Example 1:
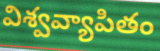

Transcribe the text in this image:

విశ్వవ్యాపితం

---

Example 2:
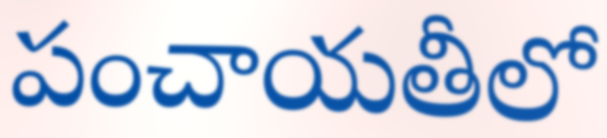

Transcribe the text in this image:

పంచాయతీలో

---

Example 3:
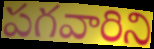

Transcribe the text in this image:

పగవారిని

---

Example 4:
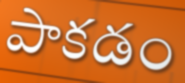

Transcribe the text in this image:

పాకడం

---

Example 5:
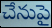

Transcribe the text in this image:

చేనుపై